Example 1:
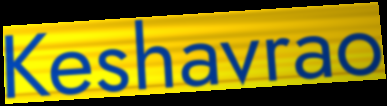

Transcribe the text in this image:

Keshavrao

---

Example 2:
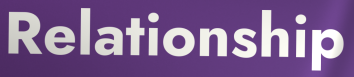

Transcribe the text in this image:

Relationship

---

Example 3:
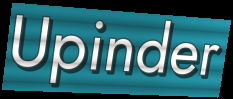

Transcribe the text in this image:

Upinder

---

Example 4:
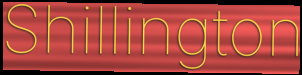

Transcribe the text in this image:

Shillington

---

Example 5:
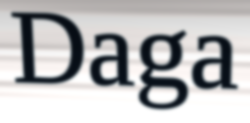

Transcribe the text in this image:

Daga